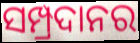
ସମ୍ପ୍ରଦାନର